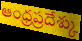
ఆంధ్రప్రదేశ్కు